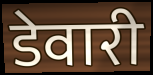
डेवारी